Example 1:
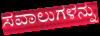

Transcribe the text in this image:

ಸವಾಲುಗಳನ್ನು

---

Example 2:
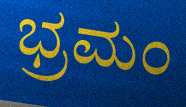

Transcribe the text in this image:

ಭ್ರಮಂ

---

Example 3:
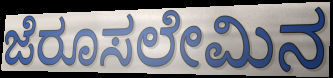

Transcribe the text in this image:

ಜೆರೂಸಲೇಮಿನ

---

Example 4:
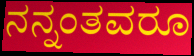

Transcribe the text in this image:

ನನ್ನಂತವರೂ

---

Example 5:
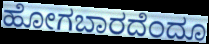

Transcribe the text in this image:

ಹೋಗಬಾರದೆಂದೂ